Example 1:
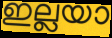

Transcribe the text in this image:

ഇല്ലയാ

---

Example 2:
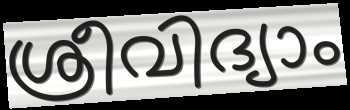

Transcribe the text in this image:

ശ്രീവിദ്യാം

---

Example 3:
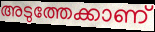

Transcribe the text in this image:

അടുത്തേക്കാണ്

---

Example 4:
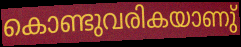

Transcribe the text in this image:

കൊണ്ടുവരികയാണു്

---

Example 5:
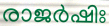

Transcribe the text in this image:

രാജർഷിഃ